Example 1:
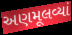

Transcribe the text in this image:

અણમૂલવ્યાં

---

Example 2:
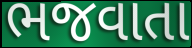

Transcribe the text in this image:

ભજવાતા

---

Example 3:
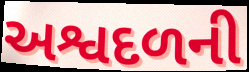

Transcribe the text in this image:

અશ્વદળની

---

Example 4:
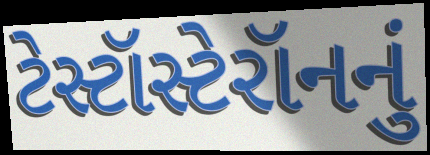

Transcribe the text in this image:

ટેસ્ટૉસ્ટેરૉનનું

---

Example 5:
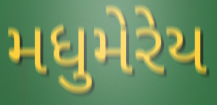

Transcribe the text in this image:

મધુમેરેય